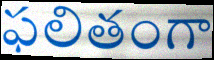
ఫలితంగా